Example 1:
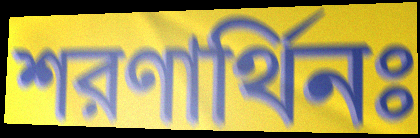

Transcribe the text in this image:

শরণার্থিনঃ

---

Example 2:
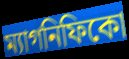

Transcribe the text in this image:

ম্যাগনিফিকো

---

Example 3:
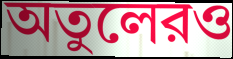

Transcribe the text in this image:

অতুলেরও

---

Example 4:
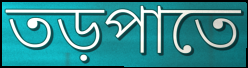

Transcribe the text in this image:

তড়পাতে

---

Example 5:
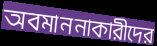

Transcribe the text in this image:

অবমাননাকারীদের